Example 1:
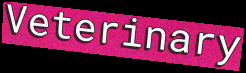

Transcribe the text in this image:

Veterinary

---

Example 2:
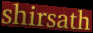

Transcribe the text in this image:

shirsath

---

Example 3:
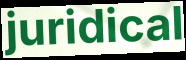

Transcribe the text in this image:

juridical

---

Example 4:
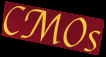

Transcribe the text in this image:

CMOs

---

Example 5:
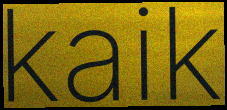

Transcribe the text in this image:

kaik